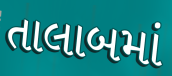
તાલાબમાં